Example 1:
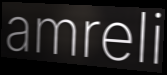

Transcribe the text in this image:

amreli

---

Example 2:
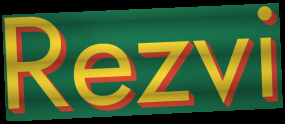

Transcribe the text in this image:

Rezvi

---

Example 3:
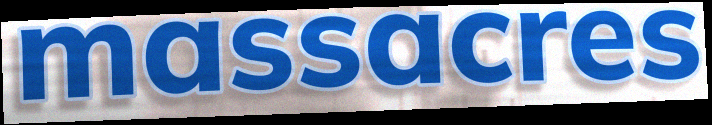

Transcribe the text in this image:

massacres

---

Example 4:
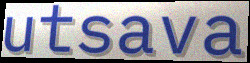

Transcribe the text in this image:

utsava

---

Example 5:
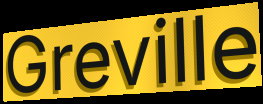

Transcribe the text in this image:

Greville